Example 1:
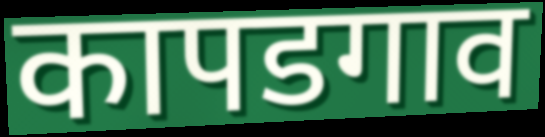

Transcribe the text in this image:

कापडगाव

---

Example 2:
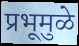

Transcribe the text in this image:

प्रभूमुळे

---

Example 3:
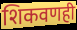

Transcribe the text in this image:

शिकवणही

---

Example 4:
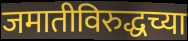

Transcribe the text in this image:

जमातीविरुद्धच्या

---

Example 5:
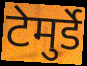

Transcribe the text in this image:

टेमुर्डे